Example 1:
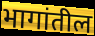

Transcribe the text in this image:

भागांतील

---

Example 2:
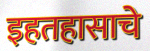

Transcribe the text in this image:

इहतहासाचे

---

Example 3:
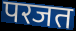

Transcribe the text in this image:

परजत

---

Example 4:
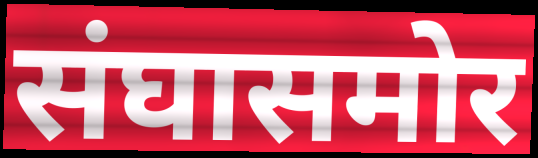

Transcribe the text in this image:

संघासमोर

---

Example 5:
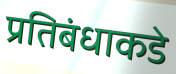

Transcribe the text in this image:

प्रतिबंधाकडे